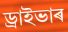
ড্ৰাইভাৰ